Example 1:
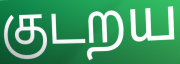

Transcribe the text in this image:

குடறய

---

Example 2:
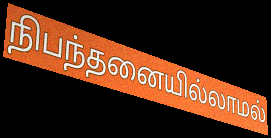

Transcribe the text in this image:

நிபந்தனையில்லாமல்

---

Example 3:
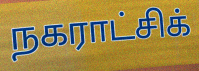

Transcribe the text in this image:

நகராட்சிக்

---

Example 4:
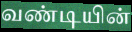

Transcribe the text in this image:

வண்டியின்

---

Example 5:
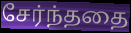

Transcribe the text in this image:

சேர்ந்ததை